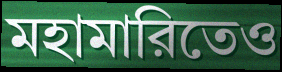
মহামারিতেও